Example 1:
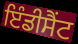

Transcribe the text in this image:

ਇੰਡੀਸੈਂਟ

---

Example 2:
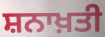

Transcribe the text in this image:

ਸ਼ਨਾਖ਼ਤੀ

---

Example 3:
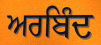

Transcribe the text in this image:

ਅਰਬਿੰਦ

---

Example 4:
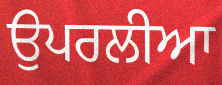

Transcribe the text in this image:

ਉਪਰਲੀਆ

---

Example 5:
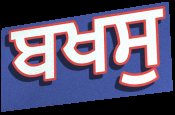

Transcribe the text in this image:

ਬਖਸੁ